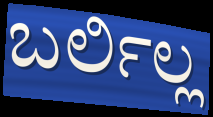
ಬರ್ಲಿಲ್ಲ